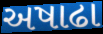
અષાઢા